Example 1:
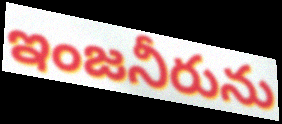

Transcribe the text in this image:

ఇంజనీరును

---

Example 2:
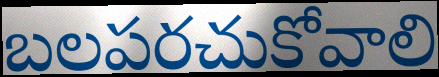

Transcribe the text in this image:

బలపరచుకోవాలి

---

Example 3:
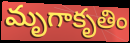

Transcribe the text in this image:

మృగాకృతిం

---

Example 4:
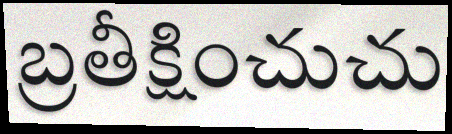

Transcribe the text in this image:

బ్రతీక్షించుచు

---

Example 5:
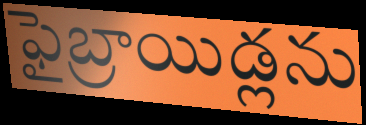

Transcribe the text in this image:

ఫైబ్రాయిడ్లను